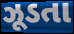
ઝૂડતા